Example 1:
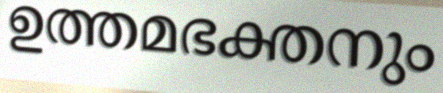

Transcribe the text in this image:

ഉത്തമഭക്തനും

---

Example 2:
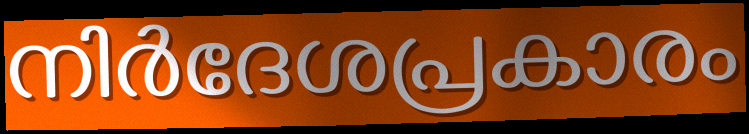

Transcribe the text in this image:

നിർദേശപ്രകാരം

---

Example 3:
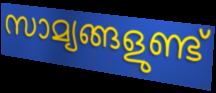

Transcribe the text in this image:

സാമ്യങ്ങളുണ്ട്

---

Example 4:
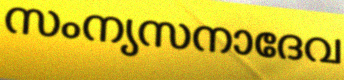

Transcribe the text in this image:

സംന്യസനാദേവ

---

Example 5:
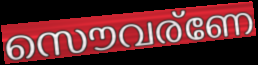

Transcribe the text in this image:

സൌവര്ണേ